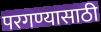
परगण्यासाठी